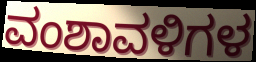
ವಂಶಾವಳಿಗಳ